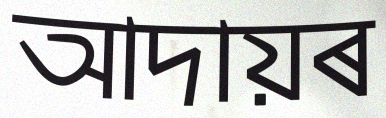
আদায়ৰ